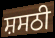
ਸ਼ਸਠੀ